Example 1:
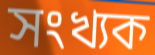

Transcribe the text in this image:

সংখ্যক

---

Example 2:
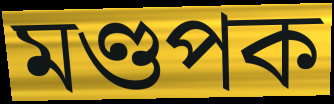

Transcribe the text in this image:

মণ্ডপক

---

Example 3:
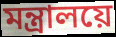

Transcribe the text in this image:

মন্ত্ৰালয়ে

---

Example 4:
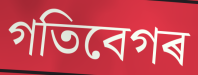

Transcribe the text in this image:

গতিবেগৰ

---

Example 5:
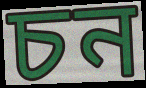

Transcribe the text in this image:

চন